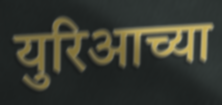
युरिआच्या